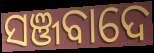
ସଞ୍ଜବାଦେ